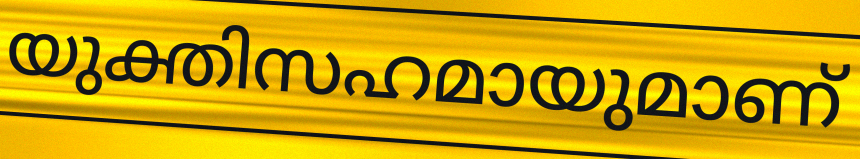
യുക്തിസഹമായുമാണ്